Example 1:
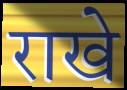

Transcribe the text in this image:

राखे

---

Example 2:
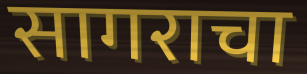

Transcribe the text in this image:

सागराचा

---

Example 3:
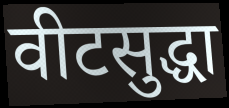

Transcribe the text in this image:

वीटसुद्धा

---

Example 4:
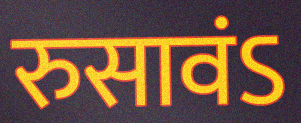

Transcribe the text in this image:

रुसावंऽ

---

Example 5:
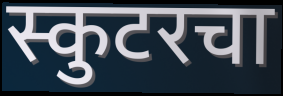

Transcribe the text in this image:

स्कुटरचा